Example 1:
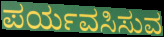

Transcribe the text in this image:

ಪರ್ಯವಸಿಸುವ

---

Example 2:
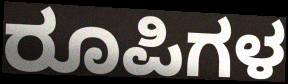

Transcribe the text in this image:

ರೂಪಿಗಳ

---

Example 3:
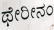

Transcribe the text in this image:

ಥೇರೀನಂ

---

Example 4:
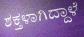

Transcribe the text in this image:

ಶಕ್ತಳಾಗಿದ್ದಾಳೆ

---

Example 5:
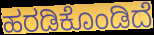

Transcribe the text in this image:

ಹರಡಿಕೊಂಡಿದೆ